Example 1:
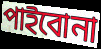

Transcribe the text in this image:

পাইবোনা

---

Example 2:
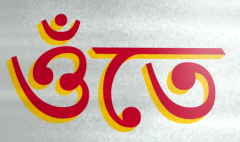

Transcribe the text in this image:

ওঁতে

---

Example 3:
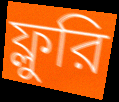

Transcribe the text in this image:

ফ্লুরি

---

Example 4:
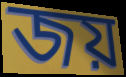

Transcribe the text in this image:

জয়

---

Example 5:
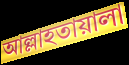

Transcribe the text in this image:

আল্লাহতায়ালা